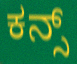
ಕನ್ಸ್